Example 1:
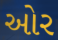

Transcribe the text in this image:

ઓર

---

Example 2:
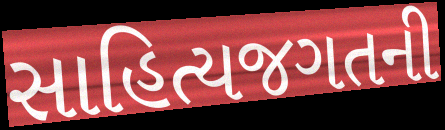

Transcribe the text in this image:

સાહિત્યજગતની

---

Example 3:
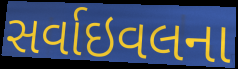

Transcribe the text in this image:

સર્વાઇવલના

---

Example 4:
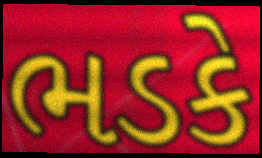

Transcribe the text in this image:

ભડકે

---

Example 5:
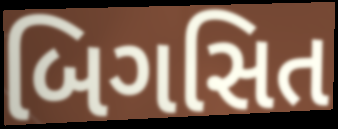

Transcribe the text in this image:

બિગસિત